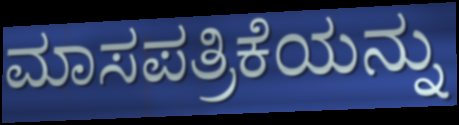
ಮಾಸಪತ್ರಿಕೆಯನ್ನು